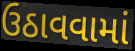
ઉઠાવવામાં